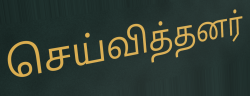
செய்வித்தனர்